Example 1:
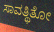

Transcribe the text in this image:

ಸಾವತ್ಥಿತೋ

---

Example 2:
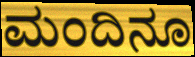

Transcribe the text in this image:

ಮಂದಿನೂ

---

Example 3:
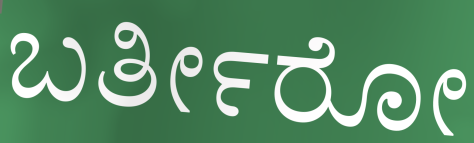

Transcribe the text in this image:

ಬರ್ತೀರೋ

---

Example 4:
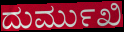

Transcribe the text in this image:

ದುರ್ಮುಖಿ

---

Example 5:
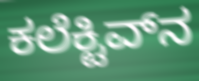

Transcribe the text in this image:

ಕಲೆಕ್ಟಿವ್‌ನ